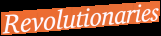
Revolutionaries